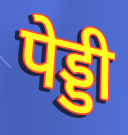
पेड्डी